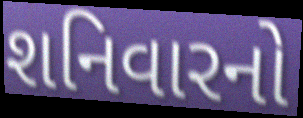
શનિવારનો